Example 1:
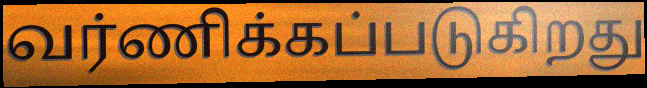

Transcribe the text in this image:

வர்ணிக்கப்படுகிறது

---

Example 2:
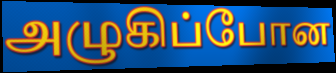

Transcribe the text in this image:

அழுகிப்போன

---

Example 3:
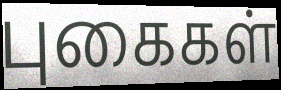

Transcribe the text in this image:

புகைகள்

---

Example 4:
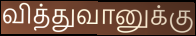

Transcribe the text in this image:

வித்துவானுக்கு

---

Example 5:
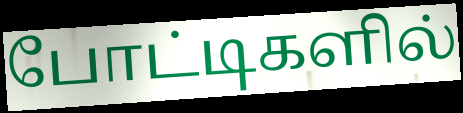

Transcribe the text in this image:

போட்டிகளில்